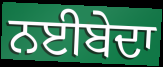
ਨਈਬੇਦਾ